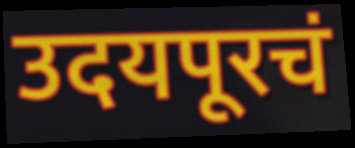
उदयपूरचं